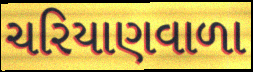
ચરિયાણવાળા